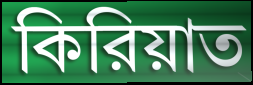
কিরিয়াত